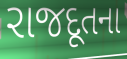
રાજદૂતના